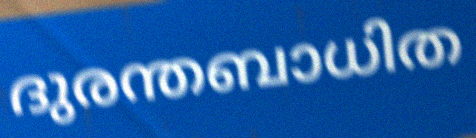
ദുരന്തബാധിത